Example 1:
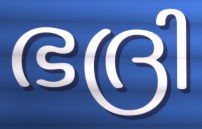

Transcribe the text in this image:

ഭദ്രി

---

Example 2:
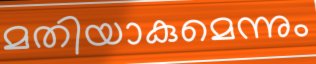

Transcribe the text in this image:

മതിയാകുമെന്നും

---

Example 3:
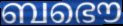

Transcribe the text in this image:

ബഭൌ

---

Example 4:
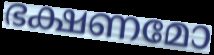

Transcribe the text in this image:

ഭക്ഷണമോ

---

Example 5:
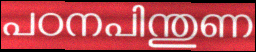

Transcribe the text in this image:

പഠനപിന്തുണ